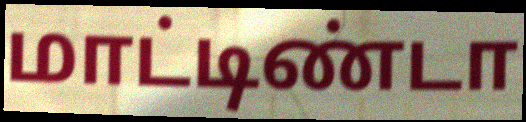
மாட்டிண்டா